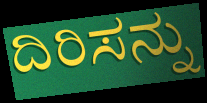
ದಿರಿಸನ್ನು